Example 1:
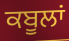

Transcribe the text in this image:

ਕਬੂਲਾਂ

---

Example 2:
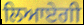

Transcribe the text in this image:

ਲਿਆਏਗੀ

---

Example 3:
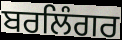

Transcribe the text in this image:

ਬਰਲਿੰਗਰ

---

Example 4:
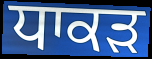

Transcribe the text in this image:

ਧਾਕੜ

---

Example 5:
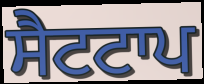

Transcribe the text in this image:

ਸੈਟਟਾਪ